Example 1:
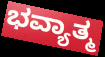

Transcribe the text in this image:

ಭವ್ಯಾತ್ಮ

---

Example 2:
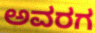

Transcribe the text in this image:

ಅವರಗ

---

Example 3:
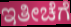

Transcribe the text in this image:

ಇತೀಚೆಗೆ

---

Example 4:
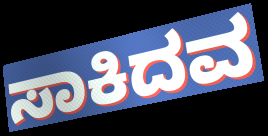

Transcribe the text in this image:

ಸಾಕಿದವ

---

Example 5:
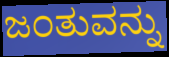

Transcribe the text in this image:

ಜಂತುವನ್ನು